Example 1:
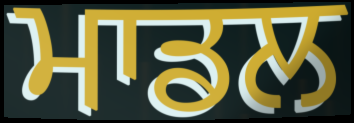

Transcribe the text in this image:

ਮਾਡਲ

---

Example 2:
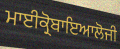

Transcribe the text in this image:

ਮਾਈਕ੍ਰੋਬਾਇਆਲੋਜੀ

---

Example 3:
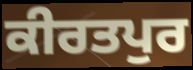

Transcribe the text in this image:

ਕੀਰਤਪੁਰ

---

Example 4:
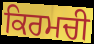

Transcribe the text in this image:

ਕਿਰਮਚੀ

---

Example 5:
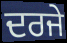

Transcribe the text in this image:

ਦਰਜੇ